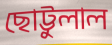
ছোট্টুলাল